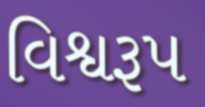
વિશ્વરૂપ